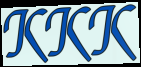
KKK